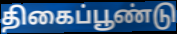
திகைப்பூண்டு